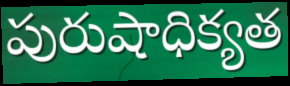
పురుషాధిక్యత